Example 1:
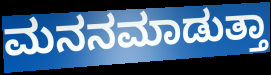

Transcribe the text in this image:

ಮನನಮಾಡುತ್ತಾ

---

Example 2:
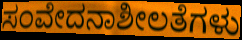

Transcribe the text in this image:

ಸಂವೇದನಾಶೀಲತೆಗಳು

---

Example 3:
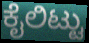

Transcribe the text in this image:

ಕೈಲಿಟ್ಟು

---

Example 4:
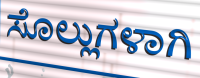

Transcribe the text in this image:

ಸೊಲ್ಲುಗಳಾಗಿ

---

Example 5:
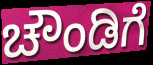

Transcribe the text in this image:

ಚೌಂಡಿಗೆ